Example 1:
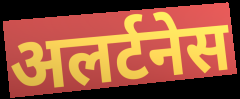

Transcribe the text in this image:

अलर्टनेस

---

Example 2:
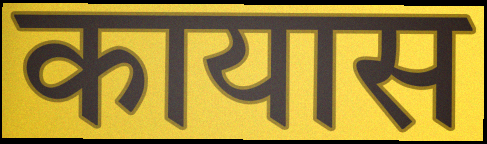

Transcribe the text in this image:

कायास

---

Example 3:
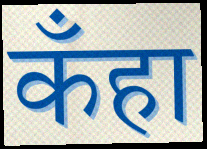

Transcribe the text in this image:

कँहा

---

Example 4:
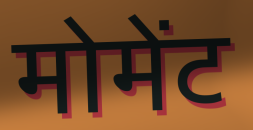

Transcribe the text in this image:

मोमेंट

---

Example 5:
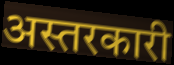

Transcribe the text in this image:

अस्तरकारी